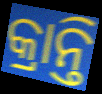
କ୍ରାନ୍ତି